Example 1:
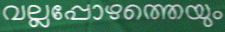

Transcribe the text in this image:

വല്ലപ്പോഴത്തെയും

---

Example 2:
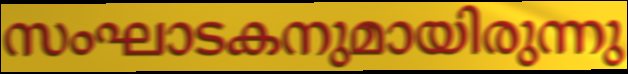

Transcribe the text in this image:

സംഘാടകനുമായിരുന്നു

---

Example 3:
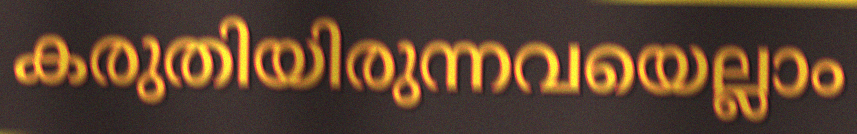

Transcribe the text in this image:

കരുതിയിരുന്നവയെല്ലാം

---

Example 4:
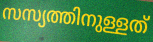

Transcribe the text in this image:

സസ്യത്തിനുള്ളത്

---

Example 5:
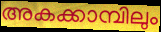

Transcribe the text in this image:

അകക്കാമ്പിലും